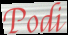
Podi